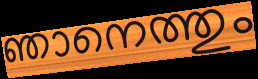
ഞാനെത്തും